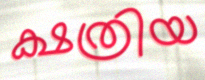
ക്ഷത്രിയ